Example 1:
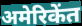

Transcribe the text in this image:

अमेरिकेंत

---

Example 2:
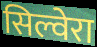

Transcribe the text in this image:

सिल्वेरा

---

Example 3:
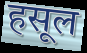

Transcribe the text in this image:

हसूल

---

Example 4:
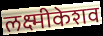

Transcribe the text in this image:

लक्ष्मीकेशव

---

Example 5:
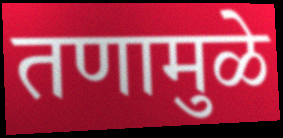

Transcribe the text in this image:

तणामुळे